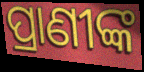
ପ୍ରାଣୀଙ୍କ